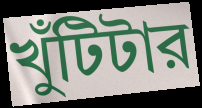
খুঁটিটার